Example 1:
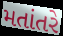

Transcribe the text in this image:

મતાંતરે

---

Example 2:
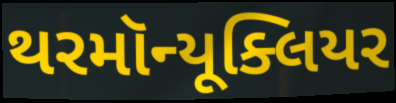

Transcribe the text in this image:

થરમૉન્યૂક્લિયર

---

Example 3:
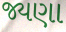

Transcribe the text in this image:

જ્યણા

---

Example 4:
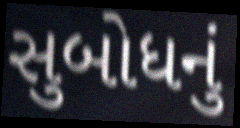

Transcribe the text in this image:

સુબોધનું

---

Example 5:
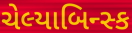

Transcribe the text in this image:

ચેલ્યાબિન્સ્ક